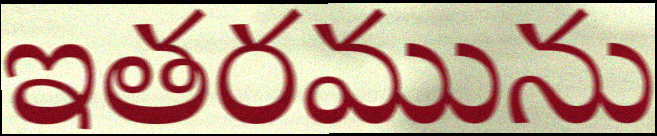
ఇతరమును